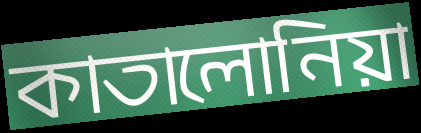
কাতালোনিয়া